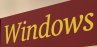
Windows